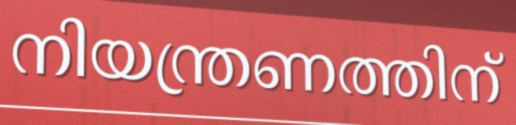
നിയന്ത്രണത്തിന്